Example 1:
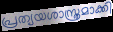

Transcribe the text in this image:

പ്രത്യയശാസ്ത്രമാക്കി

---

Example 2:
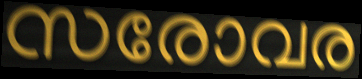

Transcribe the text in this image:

സരോവര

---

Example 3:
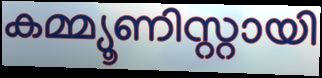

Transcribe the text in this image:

കമ്മ്യൂണിസ്റ്റായി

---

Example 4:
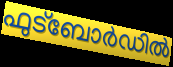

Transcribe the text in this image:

ഫുട്ബോർഡിൽ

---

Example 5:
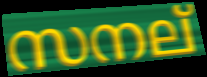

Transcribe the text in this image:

സനല്